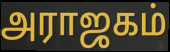
அராஜகம்